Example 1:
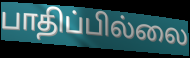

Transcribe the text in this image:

பாதிப்பில்லை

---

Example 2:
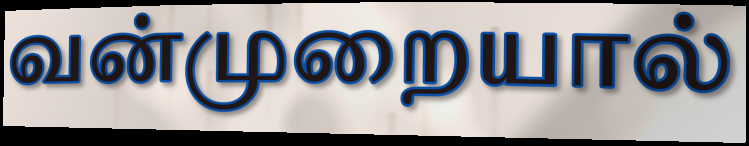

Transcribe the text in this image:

வன்முறையால்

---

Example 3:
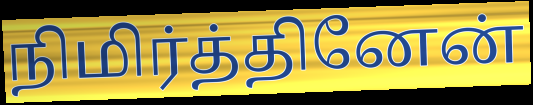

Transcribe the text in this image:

நிமிர்த்தினேன்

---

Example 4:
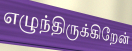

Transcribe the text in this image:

எழுந்திருக்கிறேன்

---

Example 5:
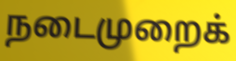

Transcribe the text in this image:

நடைமுறைக்